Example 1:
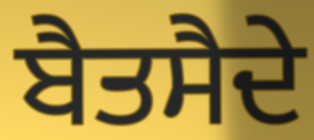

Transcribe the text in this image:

ਬੈਤਸੈਦੇ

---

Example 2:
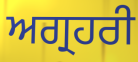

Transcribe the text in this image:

ਅਗ੍ਰਹਰੀ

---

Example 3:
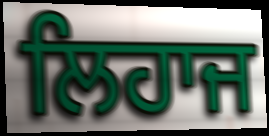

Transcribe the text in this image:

ਲਿਹਾਜ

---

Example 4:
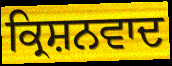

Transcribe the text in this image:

ਕ੍ਰਿਸ਼ਨਵਾਦ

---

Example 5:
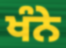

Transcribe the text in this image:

ਖੰਨੇ